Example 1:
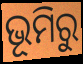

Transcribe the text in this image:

ଭୂମିରୁ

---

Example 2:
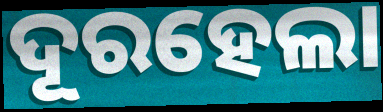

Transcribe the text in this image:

ଦୂରହେଲା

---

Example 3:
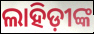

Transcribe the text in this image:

ଲାହିଡ଼ୀଙ୍କ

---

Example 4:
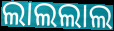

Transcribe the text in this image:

ଲାଲଲାଲ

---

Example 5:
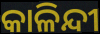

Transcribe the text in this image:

କାଳିନ୍ଦୀ